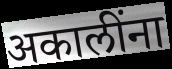
अकालींना